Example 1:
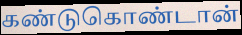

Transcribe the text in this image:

கண்டுகொண்டான்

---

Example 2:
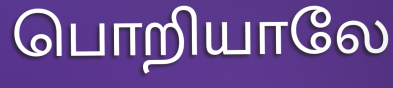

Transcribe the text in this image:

பொறியாலே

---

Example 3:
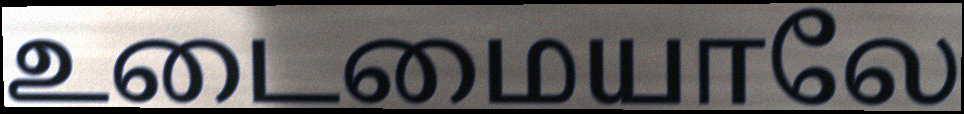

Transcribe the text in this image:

உடைமையாலே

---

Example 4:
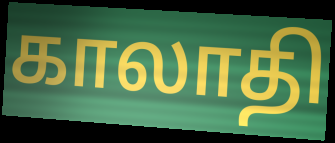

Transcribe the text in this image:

காலாதி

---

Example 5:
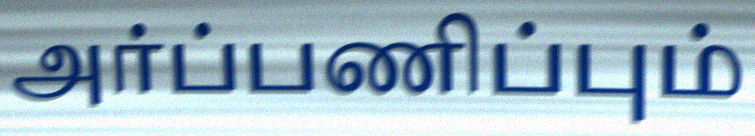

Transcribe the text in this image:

அர்ப்பணிப்பும்